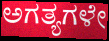
ಅಗತ್ಯಗಳೇ